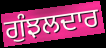
ਗੁੰਝਲਦਾਰ